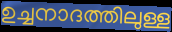
ഉച്ചനാദത്തിലുള്ള